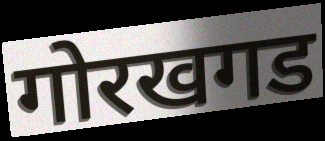
गोरखगड